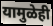
यामुळेही